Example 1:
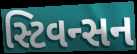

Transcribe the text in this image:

સ્ટિવન્સન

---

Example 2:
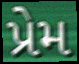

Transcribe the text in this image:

પ્રેમ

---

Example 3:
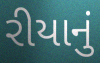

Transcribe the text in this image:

રીયાનું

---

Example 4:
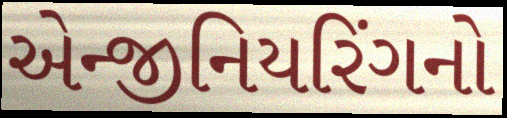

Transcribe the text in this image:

એન્જીનિયરિંગનો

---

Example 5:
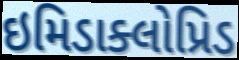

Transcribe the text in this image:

ઇમિડાક્લોપ્રિડ